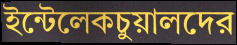
ইন্টেলেকচুয়ালদের